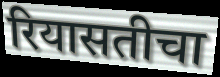
रियासतीचा